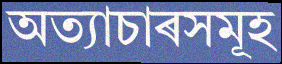
অত্যাচাৰসমূহ